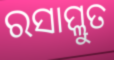
ରସାପ୍ଲୁତ